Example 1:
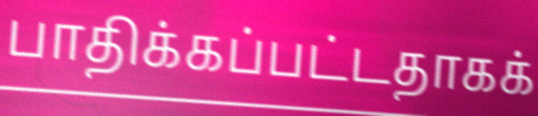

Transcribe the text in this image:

பாதிக்கப்பட்டதாகக்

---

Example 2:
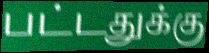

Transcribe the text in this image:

பட்டதுக்கு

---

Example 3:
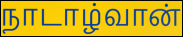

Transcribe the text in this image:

நாடாழ்வான்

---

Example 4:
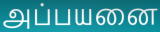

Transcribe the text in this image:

அப்பயனை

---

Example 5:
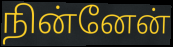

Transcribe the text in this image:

நின்னேன்